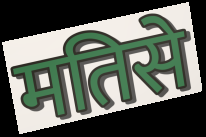
मतिसे